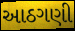
આઠગણી